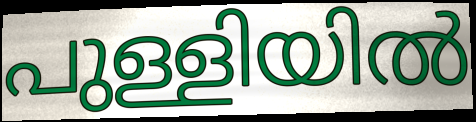
പുള്ളിയിൽ